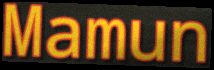
Mamun